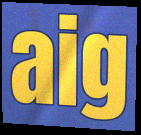
aig